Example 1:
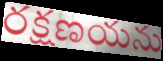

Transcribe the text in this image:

రక్షణయను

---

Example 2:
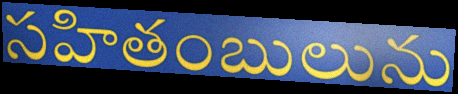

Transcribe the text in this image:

సహితంబులును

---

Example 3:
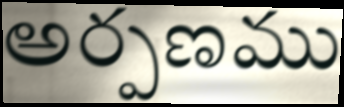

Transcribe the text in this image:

అర్పణము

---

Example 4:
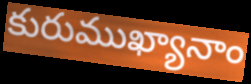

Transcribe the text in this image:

కురుముఖ్యానాం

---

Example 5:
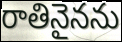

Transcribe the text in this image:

రాతినైనను